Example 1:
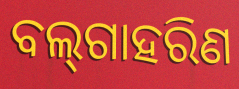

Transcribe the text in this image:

ବଲ୍‌ଗାହରିଣ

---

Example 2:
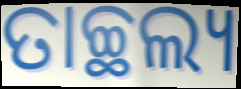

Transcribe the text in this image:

ତାଚ୍ଛଲ୍ଯ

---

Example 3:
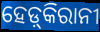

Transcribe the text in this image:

ହେଡ଼୍‌କିରାନୀ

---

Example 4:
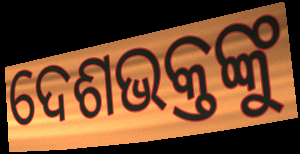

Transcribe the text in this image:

ଦେଶଭକ୍ତଙ୍କୁ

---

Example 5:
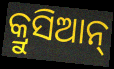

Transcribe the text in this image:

କ୍ରୁସିଆନ୍